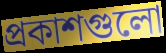
প্রকাশগুলো